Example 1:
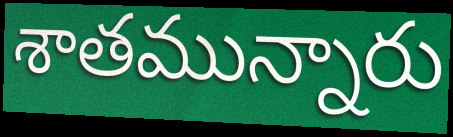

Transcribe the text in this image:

శాతమున్నారు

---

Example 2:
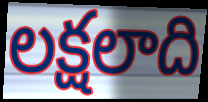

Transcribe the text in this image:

లక్షలాది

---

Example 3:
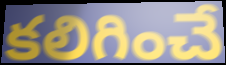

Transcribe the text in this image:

కలిగించే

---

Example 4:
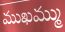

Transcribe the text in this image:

ముఖమ్ము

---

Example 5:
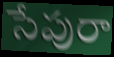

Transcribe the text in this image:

సేపురా